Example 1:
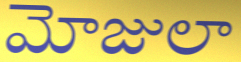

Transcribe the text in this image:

మోజులా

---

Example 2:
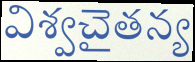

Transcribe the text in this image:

విశ్వచైతన్య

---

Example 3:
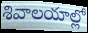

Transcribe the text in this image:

శివాలయాల్లో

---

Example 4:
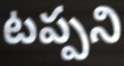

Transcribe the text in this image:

టప్పని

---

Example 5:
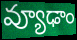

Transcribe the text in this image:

వ్యూఢాం